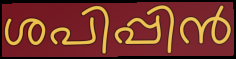
ശപിപ്പിൻ